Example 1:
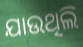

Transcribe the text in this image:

ଯାଉଥିଲି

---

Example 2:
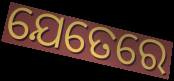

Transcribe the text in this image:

ଯେତେରେ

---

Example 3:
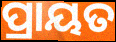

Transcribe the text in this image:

ପ୍ରାୟତ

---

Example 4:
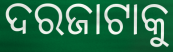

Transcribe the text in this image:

ଦରଜାଟାକୁ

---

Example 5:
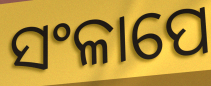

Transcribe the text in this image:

ସଂଳାପେ